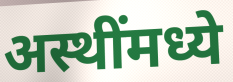
अस्थींमध्ये